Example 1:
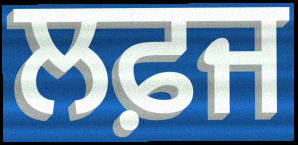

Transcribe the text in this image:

ਲਫ਼ਜ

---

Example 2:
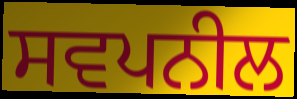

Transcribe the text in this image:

ਸਵਪਨੀਲ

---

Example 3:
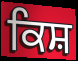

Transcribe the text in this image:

ਕਿਸ਼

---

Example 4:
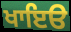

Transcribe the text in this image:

ਖਾਇੳ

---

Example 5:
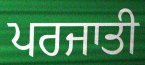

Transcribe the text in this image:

ਪਰਜਾਤੀ